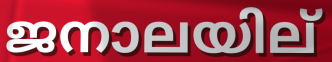
ജനാലയില്